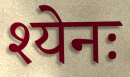
श्येनः